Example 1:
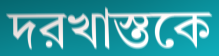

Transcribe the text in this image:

দরখাস্তকে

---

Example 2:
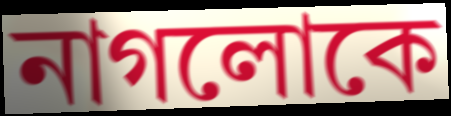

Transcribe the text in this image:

নাগলোকে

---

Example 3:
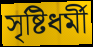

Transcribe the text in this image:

সৃষ্টিধর্মী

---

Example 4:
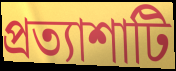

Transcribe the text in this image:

প্রত্যাশাটি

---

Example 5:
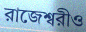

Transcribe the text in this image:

রাজেশ্বরীও